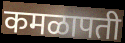
कमळापती